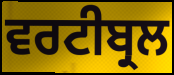
ਵਰਟੀਬ੍ਰਲ